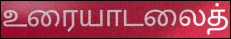
உரையாடலைத்